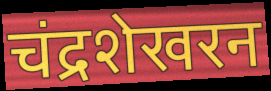
चंद्रशेखरन